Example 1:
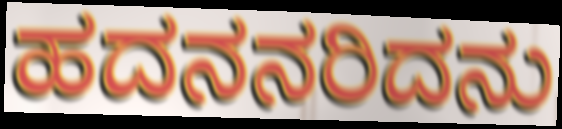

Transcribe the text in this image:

ಹದನನರಿದನು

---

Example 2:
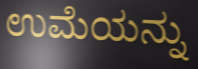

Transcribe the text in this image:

ಉಮೆಯನ್ನು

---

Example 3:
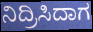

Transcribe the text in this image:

ನಿದ್ರಿಸಿದಾಗ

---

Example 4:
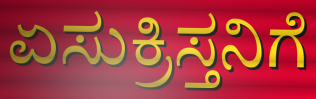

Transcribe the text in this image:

ಏಸುಕ್ರಿಸ್ತನಿಗೆ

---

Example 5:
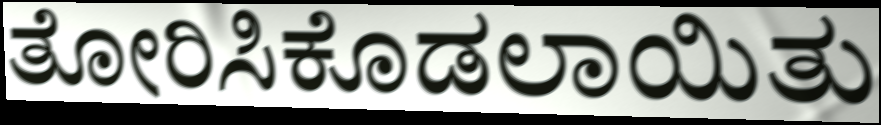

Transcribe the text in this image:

ತೋರಿಸಿಕೊಡಲಾಯಿತು